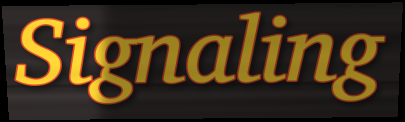
Signaling